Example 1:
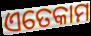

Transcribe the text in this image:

ଏତେକାମ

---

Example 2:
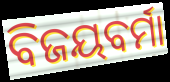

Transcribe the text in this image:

ବିଜୟବର୍ମା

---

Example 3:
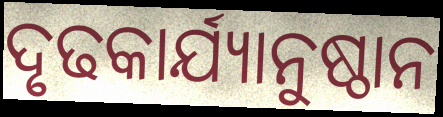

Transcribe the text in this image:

ଦୃଢକାର୍ଯ୍ୟାନୁଷ୍ଠାନ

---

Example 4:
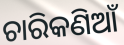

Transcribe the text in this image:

ଚାରିକଣିଆଁ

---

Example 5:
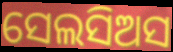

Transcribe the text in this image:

ସେଲସିଅସ